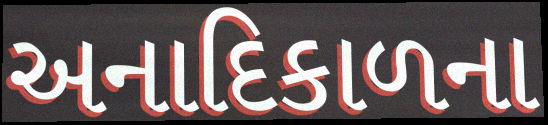
અનાદિકાળના